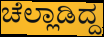
ಚೆಲ್ಲಾಡಿದ್ದ